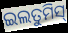
ଇଲତୁମିସ୍